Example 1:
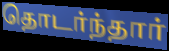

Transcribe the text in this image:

தொடர்ந்தார்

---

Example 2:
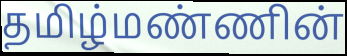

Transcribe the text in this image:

தமிழ்மண்ணின்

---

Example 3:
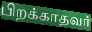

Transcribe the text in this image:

பிறக்காதவர்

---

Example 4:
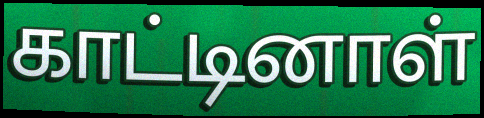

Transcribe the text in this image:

காட்டினாள்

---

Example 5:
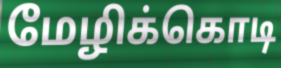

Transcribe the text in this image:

மேழிக்கொடி